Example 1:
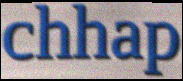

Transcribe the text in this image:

chhap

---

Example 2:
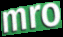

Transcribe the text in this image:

mro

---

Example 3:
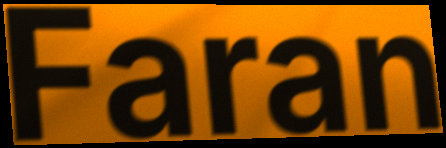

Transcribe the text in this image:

Faran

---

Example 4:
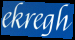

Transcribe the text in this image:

ekregh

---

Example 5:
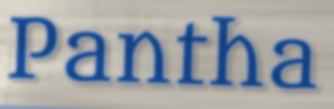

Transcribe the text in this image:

Pantha